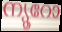
ന്യൂറോ